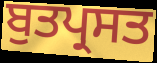
ਬੁਤਪ੍ਰਸਤ